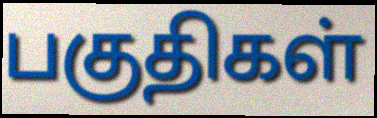
பகுதிகள்